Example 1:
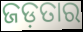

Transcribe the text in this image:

ଜଡ଼ତାର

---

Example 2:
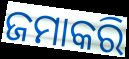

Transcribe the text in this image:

ଜମାକରି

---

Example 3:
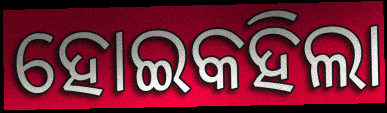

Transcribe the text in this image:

ହୋଇକହିଲା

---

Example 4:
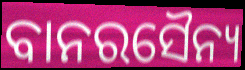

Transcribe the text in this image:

ବାନରସୈନ୍ୟ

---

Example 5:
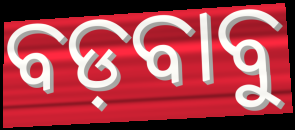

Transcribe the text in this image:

ବଡ଼ବାବୁ